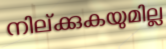
നില്ക്കുകയുമില്ല